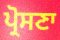
ਪ੍ਰੋਸਣਾ